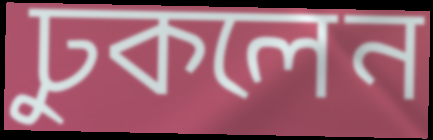
ঢুকলেন